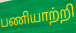
பணியாற்றி